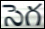
సెగ